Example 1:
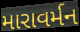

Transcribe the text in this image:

મારાવર્મન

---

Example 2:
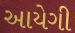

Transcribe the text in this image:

આયેગી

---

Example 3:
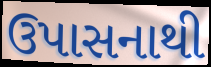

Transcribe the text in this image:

ઉપાસનાથી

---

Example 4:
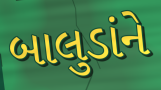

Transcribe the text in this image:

બાલુડાંને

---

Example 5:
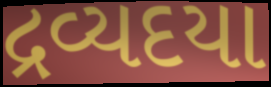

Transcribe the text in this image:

દ્રવ્યદયા